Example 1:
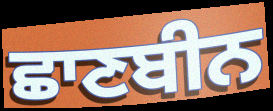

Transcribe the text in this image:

ਛਾਣਬੀਨ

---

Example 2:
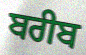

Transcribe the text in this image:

ਬਰੀਬ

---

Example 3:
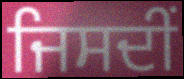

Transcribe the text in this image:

ਜਿਸਦੀਂ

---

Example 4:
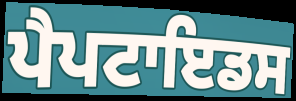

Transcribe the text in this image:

ਪੈਪਟਾਇਡਸ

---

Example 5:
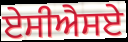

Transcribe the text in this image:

ਏਸੀਐਸਏ